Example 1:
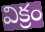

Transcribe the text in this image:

విక్రం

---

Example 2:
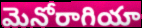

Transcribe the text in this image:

మెనోరాగియా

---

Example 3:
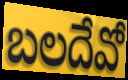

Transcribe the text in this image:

బలదేవో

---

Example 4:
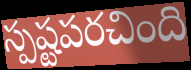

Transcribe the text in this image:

స్పష్టపరచింది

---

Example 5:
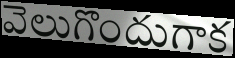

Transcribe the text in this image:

వెలుగొందుగాక